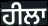
ਹੀਲਾ